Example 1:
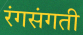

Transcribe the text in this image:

रंगसंगती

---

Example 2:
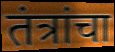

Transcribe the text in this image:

तंत्रांचा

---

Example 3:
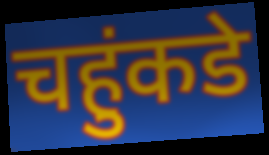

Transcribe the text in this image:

चहुंकडे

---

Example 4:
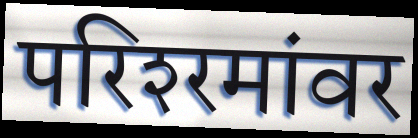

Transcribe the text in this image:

परिश्रमांवर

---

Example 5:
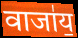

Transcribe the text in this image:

वाजा॑य॒